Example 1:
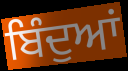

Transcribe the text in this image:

ਬਿੰਦੁਆਂ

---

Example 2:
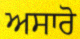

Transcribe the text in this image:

ਅਸਾਰੋ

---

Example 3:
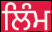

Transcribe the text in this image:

ਲਿੰਮ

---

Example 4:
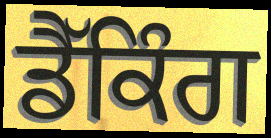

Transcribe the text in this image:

ਡੈੱਕਿੰਗ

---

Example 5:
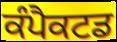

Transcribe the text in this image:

ਕੰਪੈਕਟਡ